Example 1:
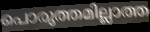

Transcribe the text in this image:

പൊരുത്തമില്ലാത്ത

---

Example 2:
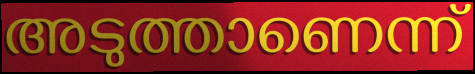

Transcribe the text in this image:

അടുത്താണെന്ന്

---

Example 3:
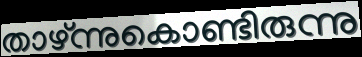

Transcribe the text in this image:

താഴ്ന്നുകൊണ്ടിരുന്നു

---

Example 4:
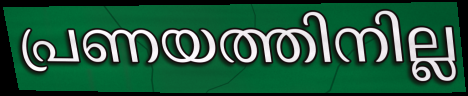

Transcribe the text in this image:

പ്രണയത്തിനില്ല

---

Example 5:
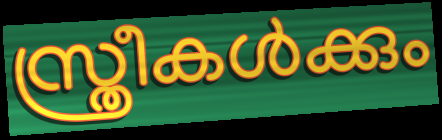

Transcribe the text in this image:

സ്ത്രീകൾക്കും